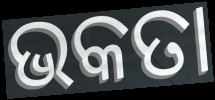
ଭକତା